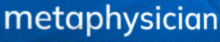
metaphysician